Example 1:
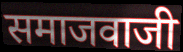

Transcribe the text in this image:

समाजवाजी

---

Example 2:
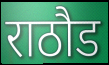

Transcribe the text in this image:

राठौड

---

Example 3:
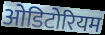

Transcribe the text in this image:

ओडिटोरियम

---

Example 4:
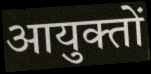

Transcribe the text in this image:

आयुक्तों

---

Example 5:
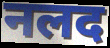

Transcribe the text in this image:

नलद